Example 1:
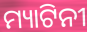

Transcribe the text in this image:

ମ୍ୟାଟିନୀ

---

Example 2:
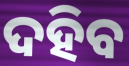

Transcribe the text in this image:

ଦହିବ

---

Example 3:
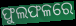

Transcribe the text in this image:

ଫୁଲଫଳରେ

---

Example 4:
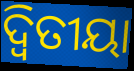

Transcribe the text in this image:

ଦ୍ୱିତୀୟା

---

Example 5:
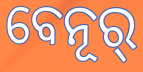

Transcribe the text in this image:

ବେନୂର୍